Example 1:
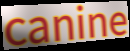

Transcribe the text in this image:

canine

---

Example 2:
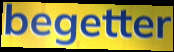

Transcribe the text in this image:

begetter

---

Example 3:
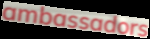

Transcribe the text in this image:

ambassadors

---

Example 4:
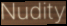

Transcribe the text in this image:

Nudity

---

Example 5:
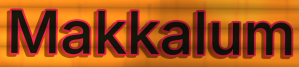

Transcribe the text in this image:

Makkalum